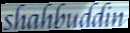
shahbuddin